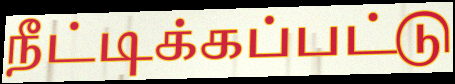
நீட்டிக்கப்பட்டு